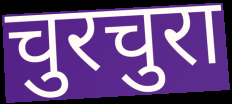
चुरचुरा